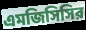
এমজিসিসির